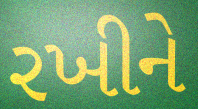
રખીને